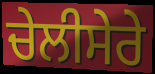
ਚੇਲੀਸੇਰੇ